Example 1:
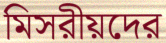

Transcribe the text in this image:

মিসরীয়দের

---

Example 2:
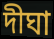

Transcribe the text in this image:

দীঘা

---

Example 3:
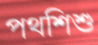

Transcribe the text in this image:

পথশিশু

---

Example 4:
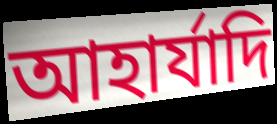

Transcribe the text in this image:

আহার্যাদি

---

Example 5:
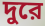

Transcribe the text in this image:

দুরে